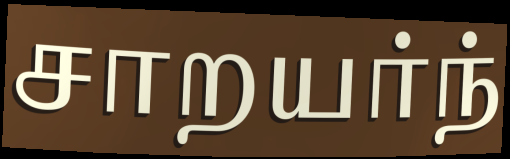
சாறயர்ந்